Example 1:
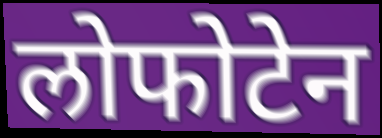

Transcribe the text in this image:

लोफोटेन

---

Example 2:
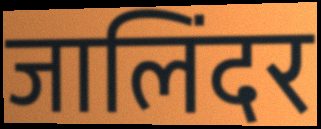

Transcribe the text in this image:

जालिंदर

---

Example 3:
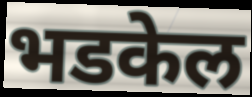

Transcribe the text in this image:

भडकेल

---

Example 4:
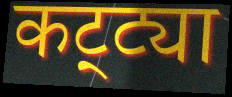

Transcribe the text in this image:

कट्ट्या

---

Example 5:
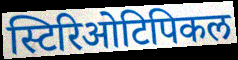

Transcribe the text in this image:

स्टिरिओटिपिकल